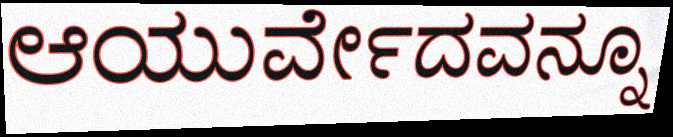
ಆಯುರ್ವೇದವನ್ನೂ